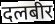
दलबीर